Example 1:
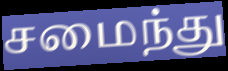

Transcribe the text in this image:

சமைந்து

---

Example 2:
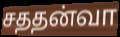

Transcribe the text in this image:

சததன்வா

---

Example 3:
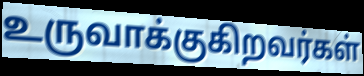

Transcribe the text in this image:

உருவாக்குகிறவர்கள்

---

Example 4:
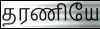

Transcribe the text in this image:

தரணியே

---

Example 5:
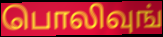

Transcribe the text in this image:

பொலிவுங்